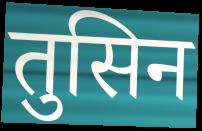
तुसिन